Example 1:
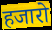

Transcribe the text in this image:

हजारो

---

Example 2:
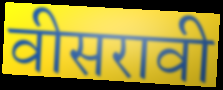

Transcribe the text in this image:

वीसरावी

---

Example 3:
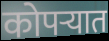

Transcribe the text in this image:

कोपर्‍यात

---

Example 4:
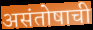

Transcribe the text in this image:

असंतोषाची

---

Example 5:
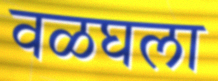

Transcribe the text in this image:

वळघला